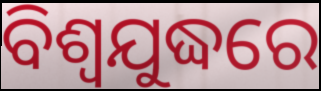
ବିଶ୍ବଯୁଦ୍ଧରେ